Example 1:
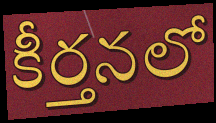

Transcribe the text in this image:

కీర్తనలో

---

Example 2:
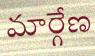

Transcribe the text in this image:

మార్గేణ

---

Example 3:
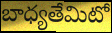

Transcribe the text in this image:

బాధ్యతేమిటో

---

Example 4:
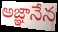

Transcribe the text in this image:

అజ్ఞానేన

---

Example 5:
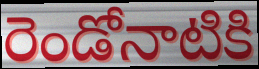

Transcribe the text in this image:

రెండోనాటికి